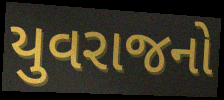
યુવરાજનો